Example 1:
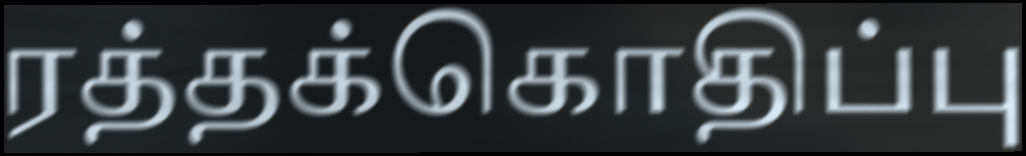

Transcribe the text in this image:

ரத்தக்கொதிப்பு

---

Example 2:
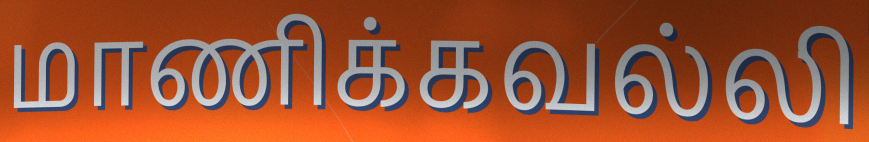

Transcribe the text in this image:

மாணிக்கவல்லி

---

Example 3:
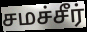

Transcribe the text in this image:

சமச்சீர்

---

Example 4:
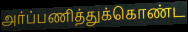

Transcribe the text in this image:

அர்ப்பணித்துக்கொண்ட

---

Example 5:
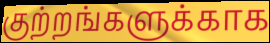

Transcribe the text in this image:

குற்றங்களுக்காக